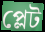
প্লেট